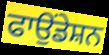
ਫਾਉਂਡੇਸ਼ਨ